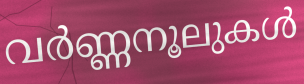
വർണ്ണനൂലുകൾ